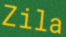
Zila